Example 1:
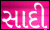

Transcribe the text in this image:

સાદી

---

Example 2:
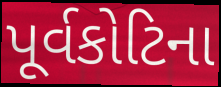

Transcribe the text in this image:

પૂર્વકોટિના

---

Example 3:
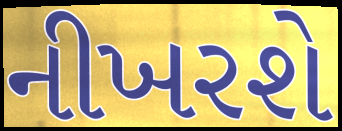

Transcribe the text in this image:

નીખરશે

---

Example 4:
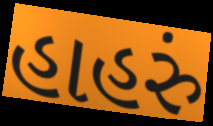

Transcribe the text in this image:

હાહરું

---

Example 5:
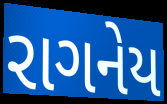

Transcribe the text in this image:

રાગનેય